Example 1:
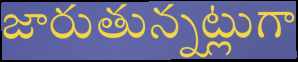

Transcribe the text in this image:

జారుతున్నట్లుగా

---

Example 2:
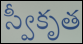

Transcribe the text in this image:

స్వీకృత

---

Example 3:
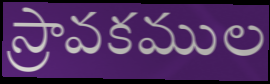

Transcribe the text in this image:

స్రావకముల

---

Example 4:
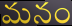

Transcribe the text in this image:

మనం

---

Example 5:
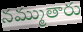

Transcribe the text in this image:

నమ్ముతారు